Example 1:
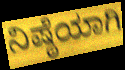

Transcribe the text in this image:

ನಿಷ್ಠೆಯಾಗಿ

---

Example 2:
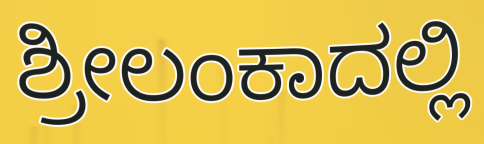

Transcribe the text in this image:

ಶ್ರೀಲಂಕಾದಲ್ಲಿ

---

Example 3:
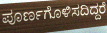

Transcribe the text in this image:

ಪೂರ್ಣಗೊಳಿಸದಿದ್ದರೆ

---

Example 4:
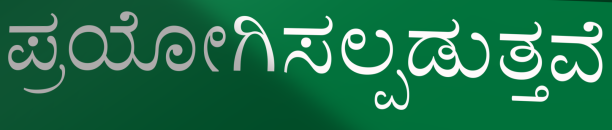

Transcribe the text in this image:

ಪ್ರಯೋಗಿಸಲ್ಪಡುತ್ತವೆ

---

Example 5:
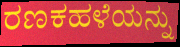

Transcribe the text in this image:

ರಣಕಹಳೆಯನ್ನು